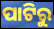
ପାଟିରୁ